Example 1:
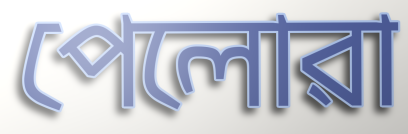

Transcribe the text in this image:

পেলোৱা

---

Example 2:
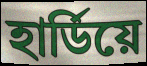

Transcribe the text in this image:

হাৰ্ডিয়ে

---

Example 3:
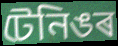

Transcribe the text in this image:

টেনিঙৰ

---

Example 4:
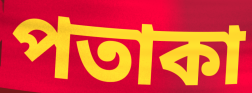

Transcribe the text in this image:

পতাকা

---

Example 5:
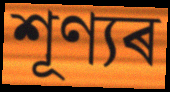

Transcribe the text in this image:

শূণ্যৰ